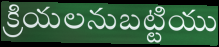
క్రియలనుబట్టియు